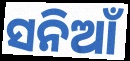
ସନିଆଁ